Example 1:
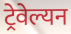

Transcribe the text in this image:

ट्रेवेल्यन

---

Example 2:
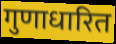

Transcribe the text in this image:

गुणाधारित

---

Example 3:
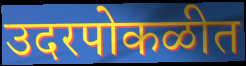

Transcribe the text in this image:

उदरपोकळीत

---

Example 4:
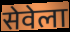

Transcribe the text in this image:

सेवेला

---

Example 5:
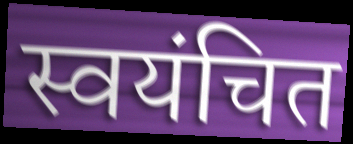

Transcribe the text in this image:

स्वयंचित